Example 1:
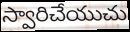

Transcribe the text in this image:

స్వారిచేయుచు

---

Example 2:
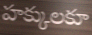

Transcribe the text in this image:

హక్కులకూ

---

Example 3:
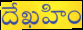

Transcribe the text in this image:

దేఖహిం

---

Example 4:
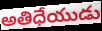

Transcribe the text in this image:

అతిధేయుడు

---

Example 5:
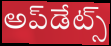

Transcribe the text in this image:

అప్‌డేట్స్